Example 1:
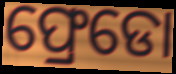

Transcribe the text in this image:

ଫ୍ରେଡୋ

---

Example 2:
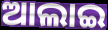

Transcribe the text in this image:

ଆଲାଇ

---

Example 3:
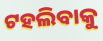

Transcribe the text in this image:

ଟହଲିବାକୁ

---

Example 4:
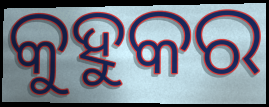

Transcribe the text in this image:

କୁହୁକର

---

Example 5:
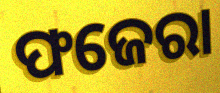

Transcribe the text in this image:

ଫଜେରା